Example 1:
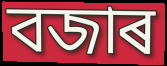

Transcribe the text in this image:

বজাৰ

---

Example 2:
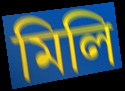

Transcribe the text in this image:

মিলি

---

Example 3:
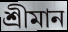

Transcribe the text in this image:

শ্ৰীমান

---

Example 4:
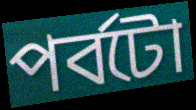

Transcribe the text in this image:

পৰ্বটো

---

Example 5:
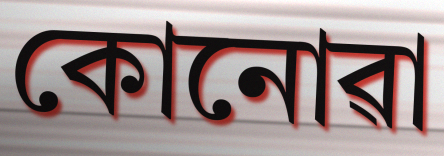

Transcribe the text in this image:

কোনোৱা